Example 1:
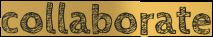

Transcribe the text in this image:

collaborate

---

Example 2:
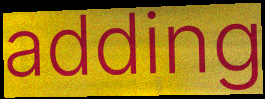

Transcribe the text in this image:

adding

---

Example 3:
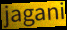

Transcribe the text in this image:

jagani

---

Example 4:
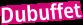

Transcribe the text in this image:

Dubuffet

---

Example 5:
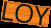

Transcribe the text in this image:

LOY